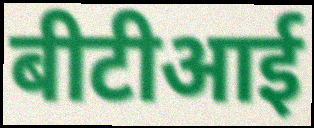
बीटीआई